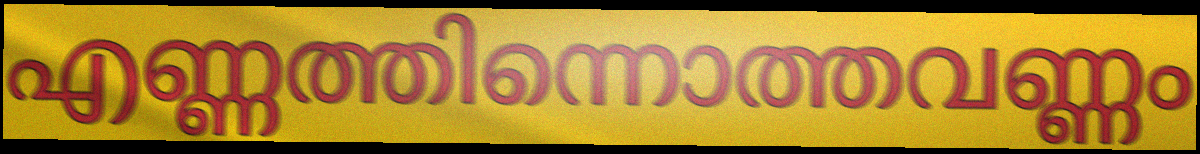
എണ്ണത്തിന്നൊത്തവണ്ണം